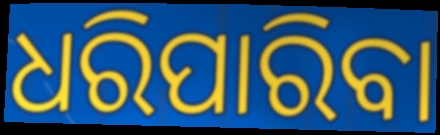
ଧରିପାରିବା